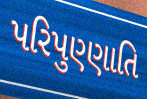
પરિપુણ્ણાતિ